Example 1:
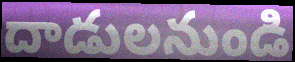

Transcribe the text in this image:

దాడులనుండి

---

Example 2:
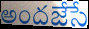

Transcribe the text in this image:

అందజేసే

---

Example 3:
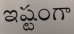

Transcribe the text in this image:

ఇష్టంగా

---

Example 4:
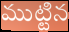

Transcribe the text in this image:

ముట్టిన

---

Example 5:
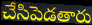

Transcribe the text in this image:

చేసిపెడతారు